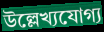
উল্লেখ্যযোগ্য